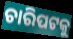
ଚାରିପଟକୁ